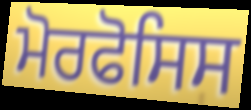
ਮੋਰਫੋਸਿਸ